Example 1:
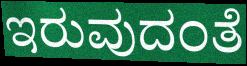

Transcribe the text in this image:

ಇರುವುದಂತೆ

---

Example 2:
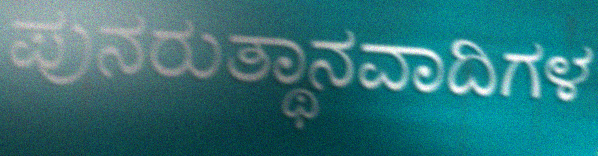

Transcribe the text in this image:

ಪುನರುತ್ಥಾನವಾದಿಗಳ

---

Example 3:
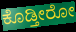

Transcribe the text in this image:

ಕೊಡ್ತೀರೋ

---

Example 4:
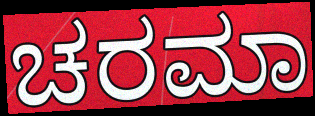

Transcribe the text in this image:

ಚರಮಾ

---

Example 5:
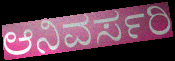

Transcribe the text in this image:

ಆನಿವರ್ಸರಿ